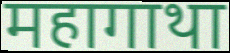
महागाथा